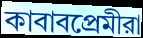
কাবাবপ্রেমীরা